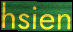
hsien